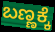
ಬಣ್ಣಕ್ಕೆ